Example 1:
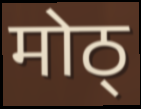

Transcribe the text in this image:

मोठ्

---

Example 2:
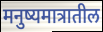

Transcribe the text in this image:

मनुष्यमात्रातील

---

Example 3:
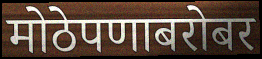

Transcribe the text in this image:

मोठेपणाबरोबर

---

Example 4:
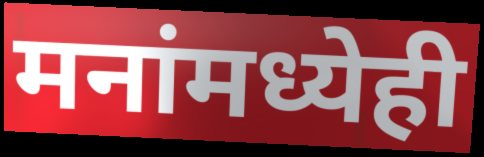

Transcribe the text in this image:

मनांमध्येही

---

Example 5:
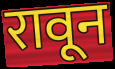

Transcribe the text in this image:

रावून